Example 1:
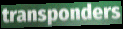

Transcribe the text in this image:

transponders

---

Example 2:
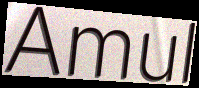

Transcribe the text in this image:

Amul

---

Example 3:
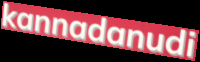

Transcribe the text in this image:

kannadanudi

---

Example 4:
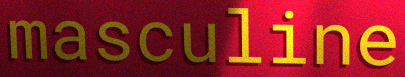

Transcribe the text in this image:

masculine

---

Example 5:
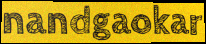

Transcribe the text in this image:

nandgaokar